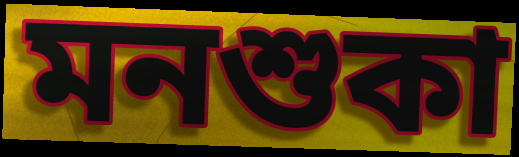
মনশুকা